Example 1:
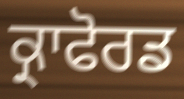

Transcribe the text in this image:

ਕ੍ਰਾਫੋਰਡ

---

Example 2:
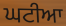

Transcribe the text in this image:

ਘਟੀਆ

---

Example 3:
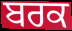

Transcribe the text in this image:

ਬਰਕ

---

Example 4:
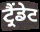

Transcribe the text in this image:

ਟ੍ਰੈਂਡੇਟ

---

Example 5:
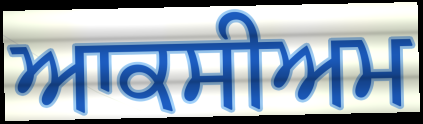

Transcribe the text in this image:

ਆਕਸੀਅਮ